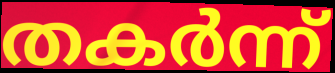
തകർന്ന്